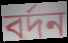
বর্দন